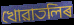
খোৱাতলিৰ